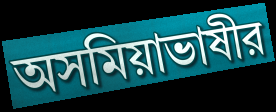
অসমিয়াভাষীর